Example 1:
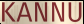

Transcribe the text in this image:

KANNU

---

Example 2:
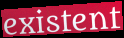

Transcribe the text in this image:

existent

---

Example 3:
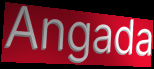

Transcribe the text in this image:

Angada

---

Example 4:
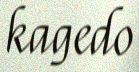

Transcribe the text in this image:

kagedo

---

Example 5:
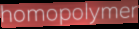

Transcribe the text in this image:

homopolymer